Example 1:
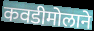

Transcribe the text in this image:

कवडीमोलाने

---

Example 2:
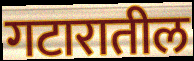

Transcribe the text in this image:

गटारातील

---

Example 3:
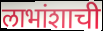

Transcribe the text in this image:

लाभांशाची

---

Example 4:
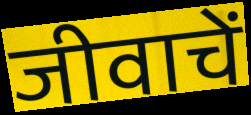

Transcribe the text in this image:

जीवाचें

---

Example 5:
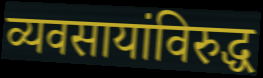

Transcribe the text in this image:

व्यवसायांविरुद्ध